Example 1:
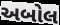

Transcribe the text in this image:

અબોલ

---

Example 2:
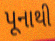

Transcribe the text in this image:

પૂનાથી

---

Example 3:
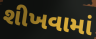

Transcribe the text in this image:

શીખવામાં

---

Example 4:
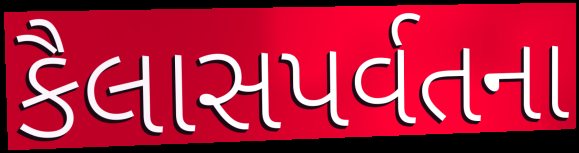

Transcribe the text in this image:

કૈલાસપર્વતના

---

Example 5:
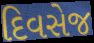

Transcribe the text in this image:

દિવસેજ